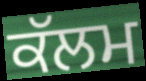
ਕੱਲਮ